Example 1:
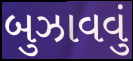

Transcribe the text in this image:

બુઝાવવું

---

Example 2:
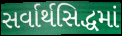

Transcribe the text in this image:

સર્વાર્થસિદ્ધમાં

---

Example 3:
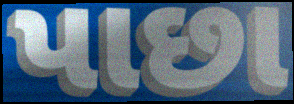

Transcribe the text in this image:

પાછા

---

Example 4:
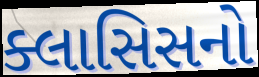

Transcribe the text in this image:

ક્લાસિસનો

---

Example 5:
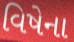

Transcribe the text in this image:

વિષેના